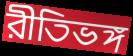
রীতিভঙ্গ